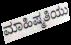
ಮಾಹಿಷ್ಮತಿಯು